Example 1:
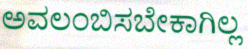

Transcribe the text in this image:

ಅವಲಂಬಿಸಬೇಕಾಗಿಲ್ಲ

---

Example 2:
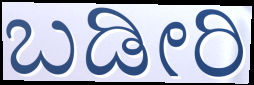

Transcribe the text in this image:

ಬಡೀರಿ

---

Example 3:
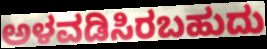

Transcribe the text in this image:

ಅಳವಡಿಸಿರಬಹುದು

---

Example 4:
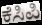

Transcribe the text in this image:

ಕೆಸಿಪಿ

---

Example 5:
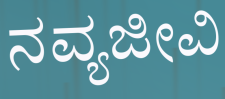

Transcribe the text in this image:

ನವ್ಯಜೀವಿ